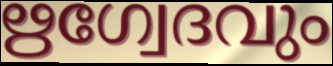
ഋഗ്വേദവും